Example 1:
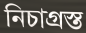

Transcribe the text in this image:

নিচাগ্ৰস্ত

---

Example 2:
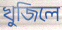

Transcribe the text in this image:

খুজিলে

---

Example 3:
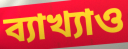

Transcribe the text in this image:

ব্যাখ্যাও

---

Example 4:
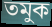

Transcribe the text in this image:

তমুক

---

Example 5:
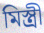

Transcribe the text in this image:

মিস্ত্ৰী